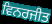
ਵਿਨਰਜੀਤ